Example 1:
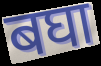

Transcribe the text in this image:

बघा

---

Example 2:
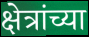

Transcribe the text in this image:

क्षेत्रांच्या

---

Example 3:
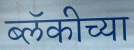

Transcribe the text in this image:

ब्लॅकीच्या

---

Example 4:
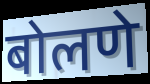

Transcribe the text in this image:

बोलणे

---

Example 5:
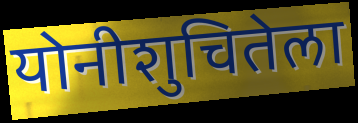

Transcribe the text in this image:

योनीशुचितेला